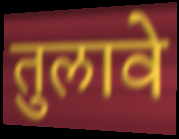
तुलावे